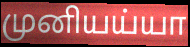
முனியய்யா